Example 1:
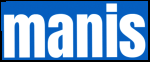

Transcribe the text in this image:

manis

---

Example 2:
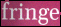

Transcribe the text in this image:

fringe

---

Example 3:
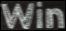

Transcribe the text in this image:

Win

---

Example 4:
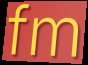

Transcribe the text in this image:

fm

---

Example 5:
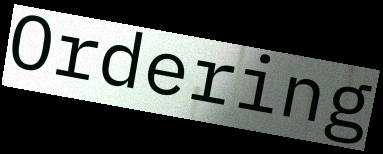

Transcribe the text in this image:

Ordering